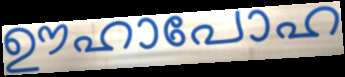
ഊഹാപോഹ